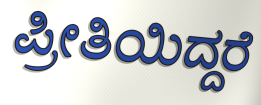
ಪ್ರೀತಿಯಿದ್ದರೆ